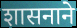
शासनाने